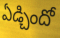
ఏడ్చిందో